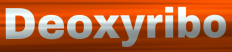
Deoxyribo